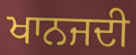
ਖਾਨਜਦੀ